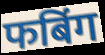
फबिंग